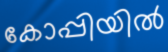
കോപ്പിയിൽ